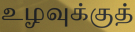
உழவுக்குத்